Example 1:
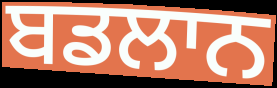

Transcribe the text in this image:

ਬਡਲਾਨ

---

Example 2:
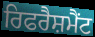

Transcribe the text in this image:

ਰਿਫਰੈਸ਼ਮੈਂਟ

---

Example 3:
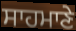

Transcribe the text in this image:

ਸਾਹਮਾਣੇ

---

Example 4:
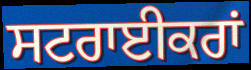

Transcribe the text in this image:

ਸਟਰਾਈਕਰਾਂ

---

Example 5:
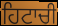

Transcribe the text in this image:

ਹਿਟਾਚੀ